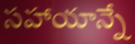
సహాయాన్నే